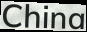
China